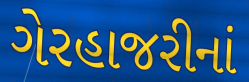
ગેરહાજરીનાં